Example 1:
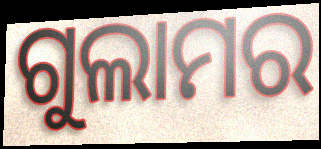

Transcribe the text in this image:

ଗୁଲାମର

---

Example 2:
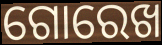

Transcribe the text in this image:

ଗୋରେଖ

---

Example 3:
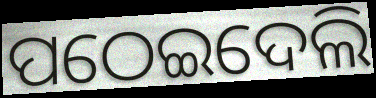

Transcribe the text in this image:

ପଠେଇଦେଲି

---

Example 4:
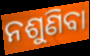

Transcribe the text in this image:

ନଶୁଣିବା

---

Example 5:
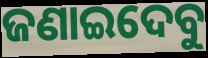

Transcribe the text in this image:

ଜଣାଇଦେବୁ